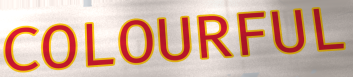
COLOURFUL